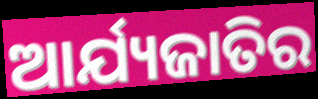
ଆର୍ଯ୍ୟଜାତିର